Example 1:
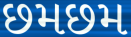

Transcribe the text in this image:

છમછમ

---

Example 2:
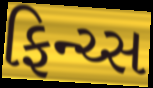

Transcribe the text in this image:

ફિન્ચ્સ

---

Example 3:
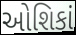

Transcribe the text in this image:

ઓશિકાં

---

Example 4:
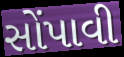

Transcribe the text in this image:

સોંપાવી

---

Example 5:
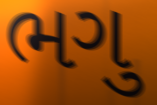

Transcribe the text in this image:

ભગુ